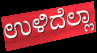
ಉಳಿದೆಲ್ಲಾ